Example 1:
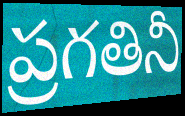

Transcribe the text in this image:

ప్రగతినీ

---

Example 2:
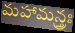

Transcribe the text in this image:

మహామన్త్రః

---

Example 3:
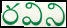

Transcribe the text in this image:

రవిని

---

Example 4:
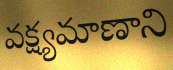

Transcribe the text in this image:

వక్ష్యమాణాని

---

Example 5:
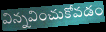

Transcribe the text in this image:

విన్నవించుకోవడం